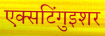
एक्सटिंगुइशर